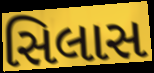
સિલાસ